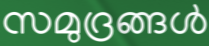
സമുദ്രങ്ങൾ